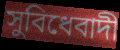
সুবিধেবাদী